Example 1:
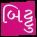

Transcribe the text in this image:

બિટ્ટુ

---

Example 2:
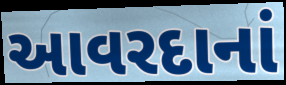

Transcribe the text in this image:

આવરદાનાં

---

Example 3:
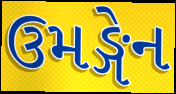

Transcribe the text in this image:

ઉમઙ્ગેન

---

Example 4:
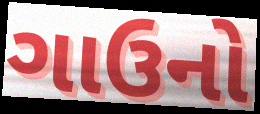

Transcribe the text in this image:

ગાઉનો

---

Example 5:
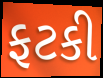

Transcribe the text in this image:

ફટકી